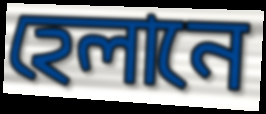
হেলানে